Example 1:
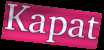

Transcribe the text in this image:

Kapat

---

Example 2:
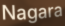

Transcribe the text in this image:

Nagara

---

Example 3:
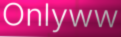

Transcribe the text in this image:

Onlyww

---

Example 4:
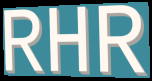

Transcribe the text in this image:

RHR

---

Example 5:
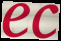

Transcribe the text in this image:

ec